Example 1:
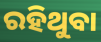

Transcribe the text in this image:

ରହିଥୁବା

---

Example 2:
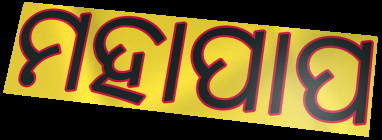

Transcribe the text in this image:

ମହାପାପ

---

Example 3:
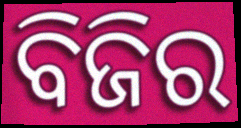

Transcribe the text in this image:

ବିଜିର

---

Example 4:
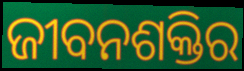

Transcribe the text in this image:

ଜୀବନଶକ୍ତିର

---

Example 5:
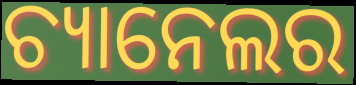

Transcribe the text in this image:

ଚ୍ୟାନେଲର